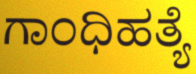
ಗಾಂಧಿಹತ್ಯೆ